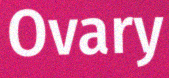
Ovary